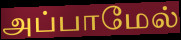
அப்பாமேல்